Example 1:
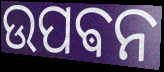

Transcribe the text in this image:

ଉପଵନ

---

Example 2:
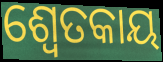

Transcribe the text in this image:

ଶ୍ବେତକାୟ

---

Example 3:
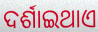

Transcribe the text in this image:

ଦର୍ଶାଇଥାଏ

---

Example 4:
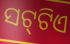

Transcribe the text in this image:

ସଟ୍‍ଟିଏ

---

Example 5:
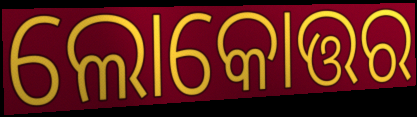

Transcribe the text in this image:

ଲୋକୋତ୍ତର